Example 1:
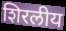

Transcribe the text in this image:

शिरलीय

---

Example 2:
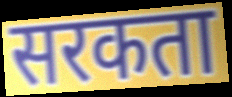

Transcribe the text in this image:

सरकता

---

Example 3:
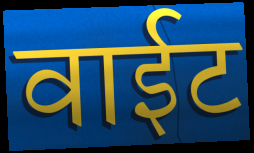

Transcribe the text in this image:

वाईट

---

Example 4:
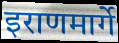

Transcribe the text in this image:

इराणमार्गे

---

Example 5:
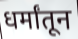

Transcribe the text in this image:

धर्मांतून